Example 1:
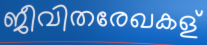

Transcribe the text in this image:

ജീവിതരേഖകള്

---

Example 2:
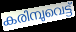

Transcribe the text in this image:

കരിമ്പുവെട്ട്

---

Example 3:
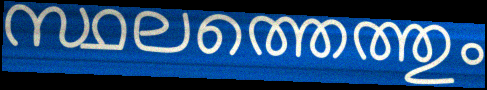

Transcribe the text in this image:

സ്ഥലത്തെത്തും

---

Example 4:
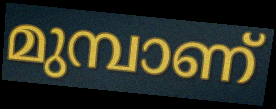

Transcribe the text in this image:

മുമ്പാണ്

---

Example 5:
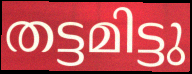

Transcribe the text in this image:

തട്ടമിട്ടു